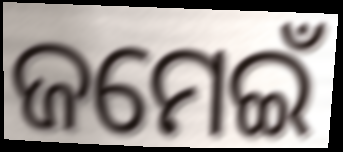
ଜମେଇଁ